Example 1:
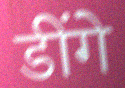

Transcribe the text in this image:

डींगे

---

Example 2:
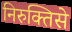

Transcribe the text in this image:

निरुक्तिसे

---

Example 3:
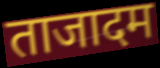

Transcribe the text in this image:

ताजादम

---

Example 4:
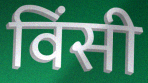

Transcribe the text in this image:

विंसी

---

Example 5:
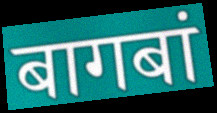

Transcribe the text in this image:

बागबां